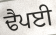
ਢੈਪਈ